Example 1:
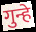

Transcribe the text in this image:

गुन्हे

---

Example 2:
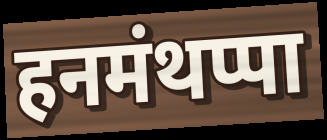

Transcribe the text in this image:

हनमंथप्पा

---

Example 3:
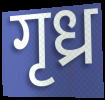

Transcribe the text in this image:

गृध्र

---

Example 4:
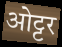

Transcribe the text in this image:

ओट्टर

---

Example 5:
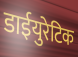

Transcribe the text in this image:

डाईयुरेटिक